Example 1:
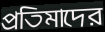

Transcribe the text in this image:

প্রতিমাদের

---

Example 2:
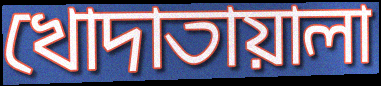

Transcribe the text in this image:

খোদাতায়ালা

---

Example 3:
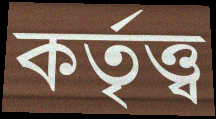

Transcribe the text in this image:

কর্তৃত্ত্ব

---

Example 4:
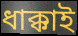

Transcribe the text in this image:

ধাক্কাই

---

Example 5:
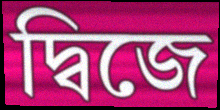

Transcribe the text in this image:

দ্বিজে